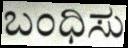
ಬಂಧಿಸು